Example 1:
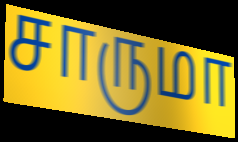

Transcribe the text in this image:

சாருமா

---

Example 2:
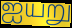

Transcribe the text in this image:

ஐயறு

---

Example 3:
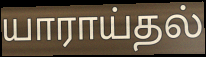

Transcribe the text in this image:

யாராய்தல்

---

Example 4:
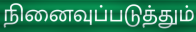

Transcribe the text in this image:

நினைவுப்படுத்தும்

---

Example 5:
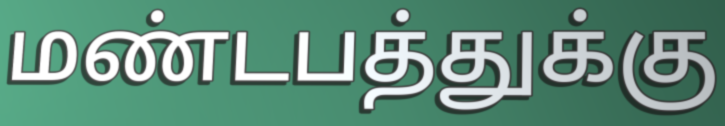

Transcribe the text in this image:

மண்டபத்துக்கு